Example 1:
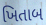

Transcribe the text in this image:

ખિતાબ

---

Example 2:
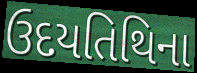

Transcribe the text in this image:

ઉદયતિથિના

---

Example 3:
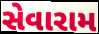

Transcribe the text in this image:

સેવારામ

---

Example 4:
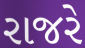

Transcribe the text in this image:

રાજરે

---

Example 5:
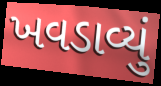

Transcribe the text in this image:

ખવડાવ્યું